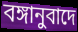
বঙ্গানুবাদে